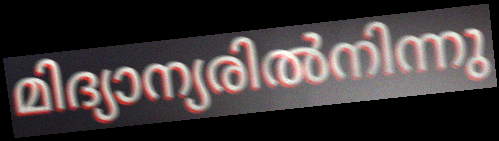
മിദ്യാന്യരിൽനിന്നു